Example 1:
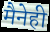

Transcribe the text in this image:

मैनेही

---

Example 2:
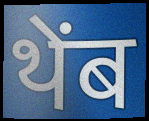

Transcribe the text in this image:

थेंब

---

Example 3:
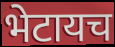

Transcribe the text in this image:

भेटायच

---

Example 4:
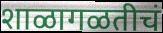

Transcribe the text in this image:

शाळागळतीचं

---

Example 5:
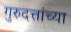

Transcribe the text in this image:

गुरुदत्तांच्या